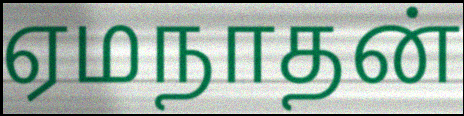
ஏமநாதன்